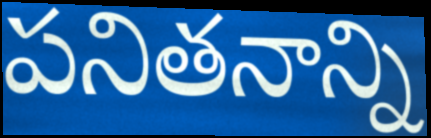
పనితనాన్ని